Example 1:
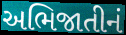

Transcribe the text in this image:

અભિજાતીનં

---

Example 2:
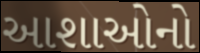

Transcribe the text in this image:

આશાઓનો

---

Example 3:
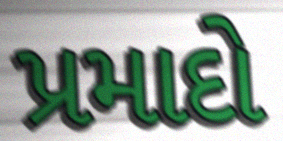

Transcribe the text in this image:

પ્રમાદો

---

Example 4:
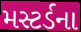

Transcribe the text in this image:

મસ્ટર્ડના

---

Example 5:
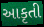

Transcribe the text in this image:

આકૃતી